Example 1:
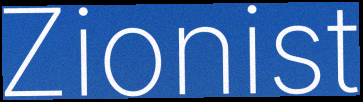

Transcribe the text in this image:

Zionist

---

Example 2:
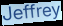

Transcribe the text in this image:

Jeffrey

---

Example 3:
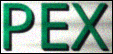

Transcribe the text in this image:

PEX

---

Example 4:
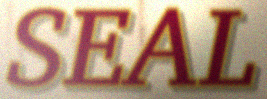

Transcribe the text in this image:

SEAL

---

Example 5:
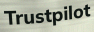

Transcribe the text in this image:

Trustpilot